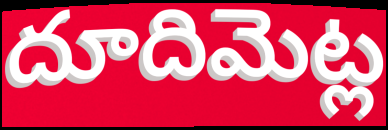
దూదిమెట్ల